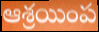
ఆశ్రయింప